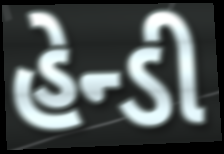
હેન્ડી